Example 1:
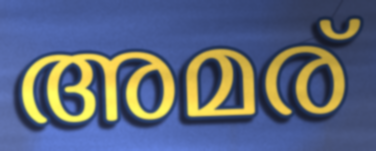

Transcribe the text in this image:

അമര്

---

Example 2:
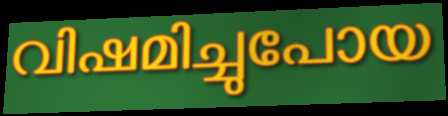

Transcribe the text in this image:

വിഷമിച്ചുപോയ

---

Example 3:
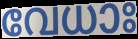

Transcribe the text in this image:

വേധാഃ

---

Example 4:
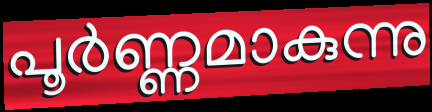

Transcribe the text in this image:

പൂർണ്ണമാകുന്നു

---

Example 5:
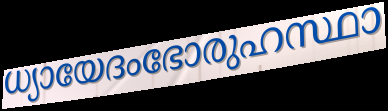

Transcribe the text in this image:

ധ്യായേദംഭോരുഹസ്ഥാ